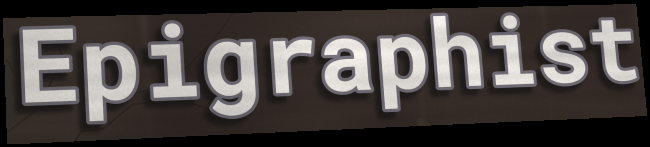
Epigraphist